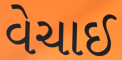
વેચાઈ